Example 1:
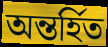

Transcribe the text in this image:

অন্তর্হিত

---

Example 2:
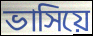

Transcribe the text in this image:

ভাসিয়ে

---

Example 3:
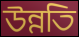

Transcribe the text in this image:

উন্নতি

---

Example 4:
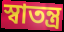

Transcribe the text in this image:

স্বাতন্ত্র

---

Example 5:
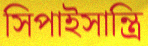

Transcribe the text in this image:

সিপাইসান্ত্রি